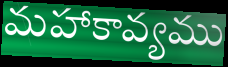
మహాకావ్యము